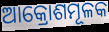
ଆକ୍ରୋଶମୂଳକ